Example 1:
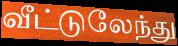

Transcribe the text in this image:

வீட்டுலேந்து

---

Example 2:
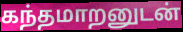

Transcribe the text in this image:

கந்தமாறனுடன்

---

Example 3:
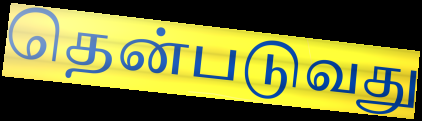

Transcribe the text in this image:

தென்படுவது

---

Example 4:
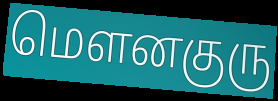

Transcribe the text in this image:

மௌனகுரு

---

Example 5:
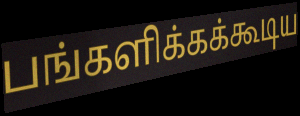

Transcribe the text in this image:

பங்களிக்கக்கூடிய